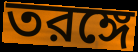
তরঙ্গে